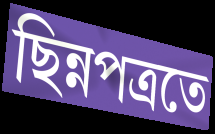
ছিন্নপত্রতে